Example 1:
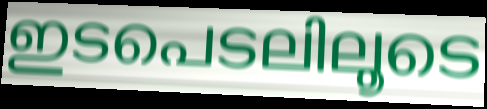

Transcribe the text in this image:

ഇടപെടലിലൂടെ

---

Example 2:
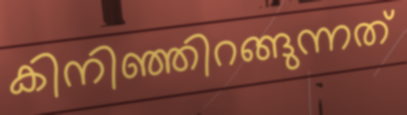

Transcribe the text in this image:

കിനിഞ്ഞിറങ്ങുന്നത്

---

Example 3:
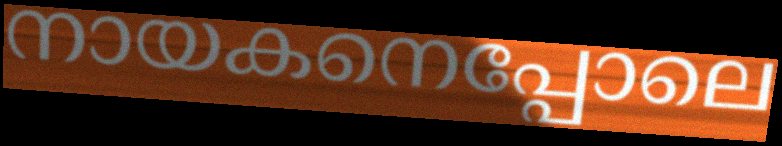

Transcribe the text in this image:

നായകനെപ്പോലെ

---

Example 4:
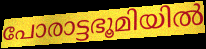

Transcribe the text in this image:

പോരാട്ടഭൂമിയിൽ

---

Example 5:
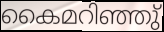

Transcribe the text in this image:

കൈമറിഞ്ഞു്